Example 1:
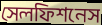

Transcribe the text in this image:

সেলফিশনেস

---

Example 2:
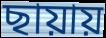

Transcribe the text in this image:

ছায়ায়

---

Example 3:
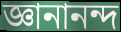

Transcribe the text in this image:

জ্ঞানানন্দ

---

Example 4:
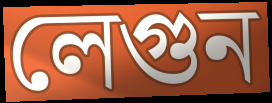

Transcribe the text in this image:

লেগুন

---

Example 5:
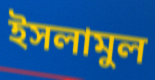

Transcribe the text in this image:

ইসলামুল